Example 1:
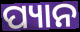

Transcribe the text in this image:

ପ୍ୟାନ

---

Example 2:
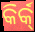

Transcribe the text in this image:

କିର୍କ୍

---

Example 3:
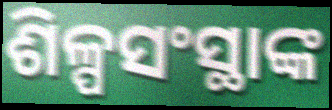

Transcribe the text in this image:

ଶିଳ୍ପସଂସ୍ଥାଙ୍କ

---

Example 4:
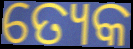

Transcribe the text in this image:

ତ୍ଯେକ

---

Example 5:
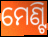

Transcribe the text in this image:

ମେଣ୍ଟି